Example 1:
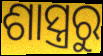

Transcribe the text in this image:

ଶାସ୍ତ୍ରରୁ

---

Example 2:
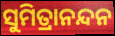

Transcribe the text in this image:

ସୁମିତ୍ରାନନ୍ଦନ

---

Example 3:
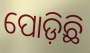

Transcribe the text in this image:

ପୋଡ଼ିଛି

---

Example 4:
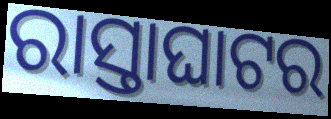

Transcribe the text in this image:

ରାସ୍ତାଘାଟର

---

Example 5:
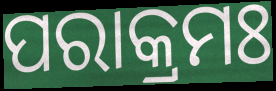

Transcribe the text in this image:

ପରାକ୍ରମଃ